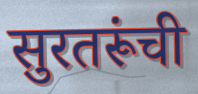
सुरतरूंची